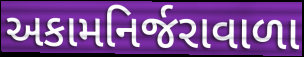
અકામનિર્જરાવાળા